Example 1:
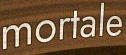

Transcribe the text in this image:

mortale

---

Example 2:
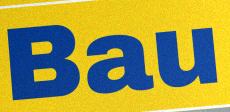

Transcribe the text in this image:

Bau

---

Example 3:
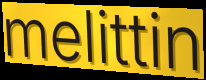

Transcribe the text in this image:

melittin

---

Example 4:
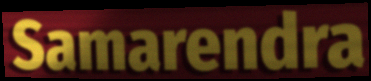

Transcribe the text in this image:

Samarendra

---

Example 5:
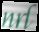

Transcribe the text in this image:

nrl